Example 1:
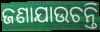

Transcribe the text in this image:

ଜଣାଯାଉଚନ୍ତି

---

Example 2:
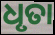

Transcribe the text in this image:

ଧୃତା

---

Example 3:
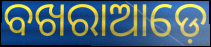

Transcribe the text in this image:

ବଖରାଆଡ଼େ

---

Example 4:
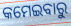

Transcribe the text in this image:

କମେଇବାରୁ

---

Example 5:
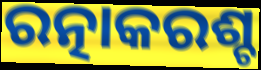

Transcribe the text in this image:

ରତ୍ନାକରଶ୍ଚ